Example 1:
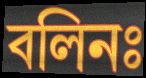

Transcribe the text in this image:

বলিনঃ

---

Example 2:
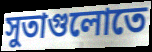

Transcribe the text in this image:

সুতাগুলোতে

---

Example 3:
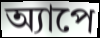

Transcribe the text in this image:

অ্যাপে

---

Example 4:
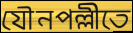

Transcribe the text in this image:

যৌনপল্লীতে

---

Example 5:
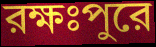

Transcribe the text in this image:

রক্ষঃপুরে